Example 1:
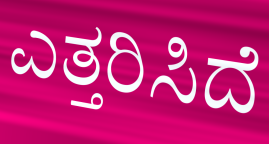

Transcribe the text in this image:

ಎತ್ತರಿಸಿದೆ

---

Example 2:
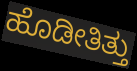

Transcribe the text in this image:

ಹೊಡೀತಿತ್ತು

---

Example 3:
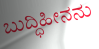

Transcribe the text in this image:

ಬುದ್ಧಿಹೀನನು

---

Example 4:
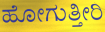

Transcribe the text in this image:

ಹೋಗುತ್ತೀರಿ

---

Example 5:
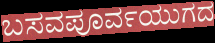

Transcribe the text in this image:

ಬಸವಪೂರ್ವಯುಗದ